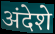
अंदेशे